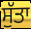
ਸੁੱਤਾ